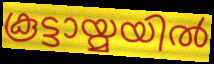
കൂട്ടായ്മയിൽ